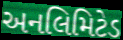
અનલિમિટેડ